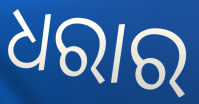
ଧରାର